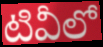
టివీలో